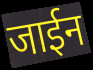
जाईन